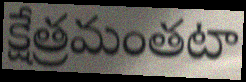
క్షేత్రమంతటా